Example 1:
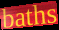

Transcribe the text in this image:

baths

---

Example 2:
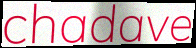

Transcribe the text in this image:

chadave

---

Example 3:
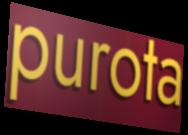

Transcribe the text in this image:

purota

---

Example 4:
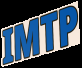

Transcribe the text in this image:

IMTP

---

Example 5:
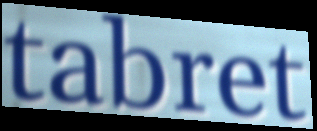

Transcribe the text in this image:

tabret